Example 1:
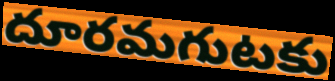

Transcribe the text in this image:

దూరమగుటకు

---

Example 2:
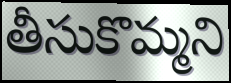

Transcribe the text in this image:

తీసుకొమ్మని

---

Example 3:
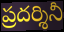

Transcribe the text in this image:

ప్రదర్శినీ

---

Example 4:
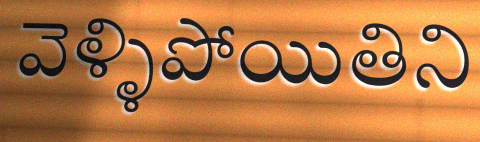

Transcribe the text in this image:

వెళ్ళిపోయితిని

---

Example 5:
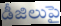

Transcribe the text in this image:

డీజిలుపై